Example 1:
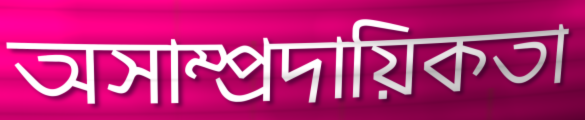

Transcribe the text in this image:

অসাম্প্রদায়িকতা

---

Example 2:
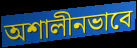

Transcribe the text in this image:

অশালীনভাবে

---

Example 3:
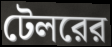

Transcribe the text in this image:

টেলরের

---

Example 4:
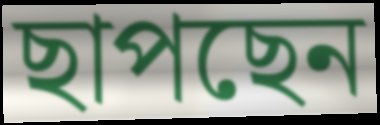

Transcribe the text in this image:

ছাপছেন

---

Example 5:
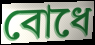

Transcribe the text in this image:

বোধে